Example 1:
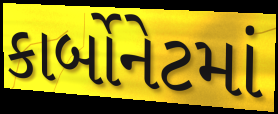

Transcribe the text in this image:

કાર્બોનેટમાં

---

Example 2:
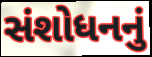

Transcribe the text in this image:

સંશોધનનું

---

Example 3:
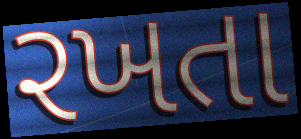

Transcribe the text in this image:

રખતા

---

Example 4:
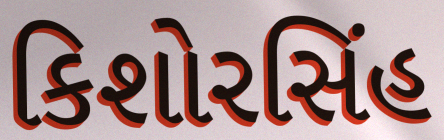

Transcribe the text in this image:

કિશોરસિંહ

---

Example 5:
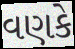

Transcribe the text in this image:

વણકે